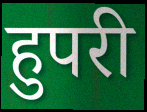
हुपरी